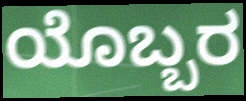
ಯೊಬ್ಬರ